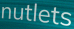
nutlets